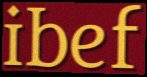
ibef